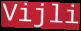
Vijli